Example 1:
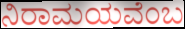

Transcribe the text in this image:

ನಿರಾಮಯವೆಂಬ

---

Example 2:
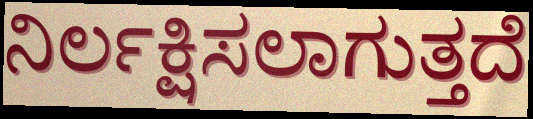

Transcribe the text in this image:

ನಿರ್ಲಕ್ಷಿಸಲಾಗುತ್ತದೆ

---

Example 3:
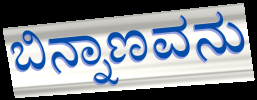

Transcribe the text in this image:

ಬಿನ್ನಾಣವನು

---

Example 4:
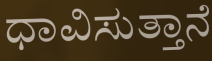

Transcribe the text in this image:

ಧಾವಿಸುತ್ತಾನೆ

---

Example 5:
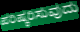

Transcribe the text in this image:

ಪರಿಷ್ಕರಿಸುವುದು